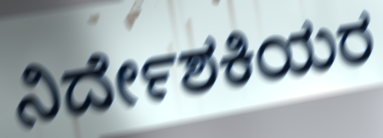
ನಿರ್ದೇಶಕಿಯರ